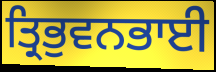
ਤ੍ਰਿਭੁਵਨਭਾਈ